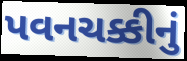
પવનચક્કીનું